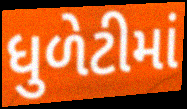
ધુળેટીમાં